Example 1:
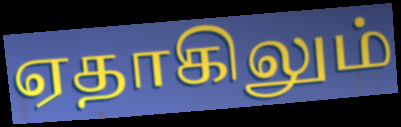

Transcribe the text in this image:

ஏதாகிலும்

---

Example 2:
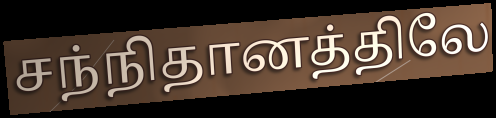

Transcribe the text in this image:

சந்நிதானத்திலே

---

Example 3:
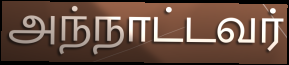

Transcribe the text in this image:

அந்நாட்டவர்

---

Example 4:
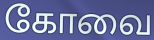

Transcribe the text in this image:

கோவை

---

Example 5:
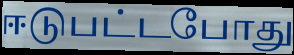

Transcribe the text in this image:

ஈடுபட்டபோது